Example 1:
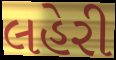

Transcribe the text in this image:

લહેરી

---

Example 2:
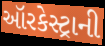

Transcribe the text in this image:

ઑરકેસ્ટ્રાની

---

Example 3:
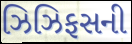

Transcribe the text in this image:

ઝિઝિફસની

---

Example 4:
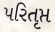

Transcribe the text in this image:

પરિતૃપ્ત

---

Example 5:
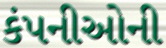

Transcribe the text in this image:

કંપનીઓની